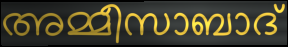
അമ്മീസാബാദ്